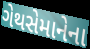
ગેથસેમાનેના